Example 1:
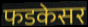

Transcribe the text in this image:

फडकेसर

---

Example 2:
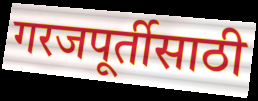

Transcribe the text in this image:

गरजपूर्तीसाठी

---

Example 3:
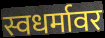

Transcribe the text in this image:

स्वधर्मावर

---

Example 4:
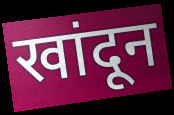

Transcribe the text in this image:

खांदून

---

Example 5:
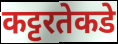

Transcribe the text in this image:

कट्टरतेकडे